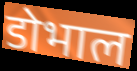
डोभाल